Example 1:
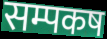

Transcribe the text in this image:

सम्पकष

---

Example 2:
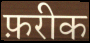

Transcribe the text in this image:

फ़रीक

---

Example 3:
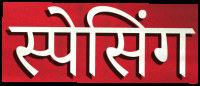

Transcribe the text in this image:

स्पेसिंग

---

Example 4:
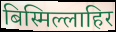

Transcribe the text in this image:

बिस्मिल्लाहिर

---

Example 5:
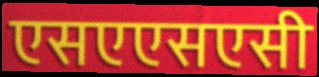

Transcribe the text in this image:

एसएएसएसी